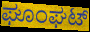
ಘೂಂಘಟ್